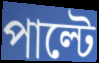
পাল্টে